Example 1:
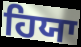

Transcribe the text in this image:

ਹਿਯਾ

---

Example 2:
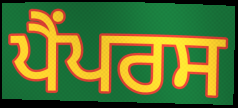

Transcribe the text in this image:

ਪੈਂਪਰਸ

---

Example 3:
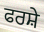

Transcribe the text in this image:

ਫਰਸ਼ੇ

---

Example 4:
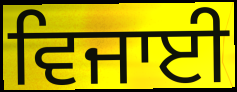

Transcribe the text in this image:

ਵਿਜਾਈ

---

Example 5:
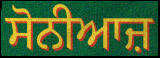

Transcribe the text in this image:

ਸੋਨੀਆਜ਼